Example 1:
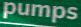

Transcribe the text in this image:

pumps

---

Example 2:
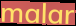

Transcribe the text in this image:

malar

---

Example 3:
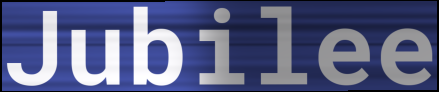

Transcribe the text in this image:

Jubilee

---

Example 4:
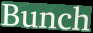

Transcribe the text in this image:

Bunch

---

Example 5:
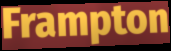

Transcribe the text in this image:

Frampton